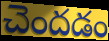
చెందడం